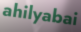
ahilyabai